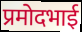
प्रमोदभाई